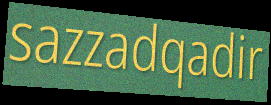
sazzadqadir